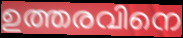
ഉത്തരവിനെ